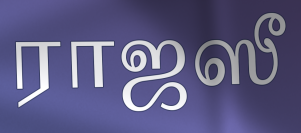
ராஜஸீ